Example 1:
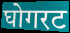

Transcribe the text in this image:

घोगरट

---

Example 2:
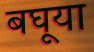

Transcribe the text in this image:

बघूया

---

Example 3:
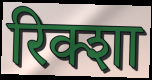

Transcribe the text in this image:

रिक्शा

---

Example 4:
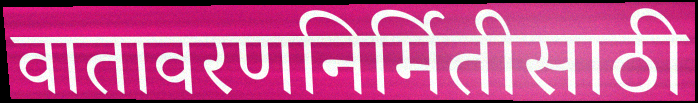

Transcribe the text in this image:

वातावरणनिर्मितीसाठी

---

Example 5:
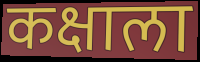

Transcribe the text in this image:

कक्षाला